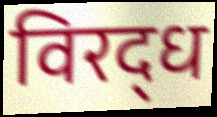
विरद्ध